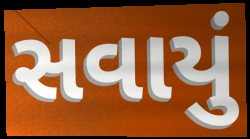
સવાયું